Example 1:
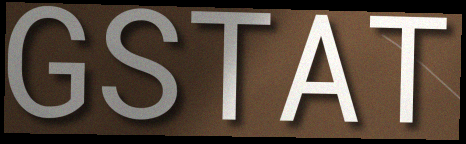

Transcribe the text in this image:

GSTAT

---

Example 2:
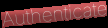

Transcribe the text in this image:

Authenticate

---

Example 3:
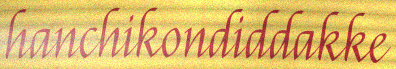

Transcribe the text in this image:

hanchikondiddakke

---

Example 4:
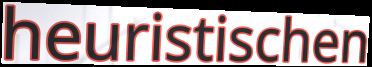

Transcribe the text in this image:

heuristischen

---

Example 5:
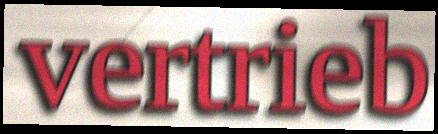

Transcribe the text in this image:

vertrieb